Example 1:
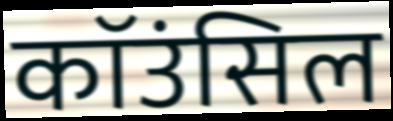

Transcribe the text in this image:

कॉउंसिल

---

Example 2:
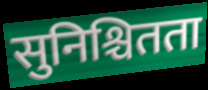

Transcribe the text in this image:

सुनिश्चितता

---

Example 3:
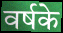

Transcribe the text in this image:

वर्षके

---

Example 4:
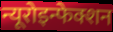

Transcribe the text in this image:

न्यूरोइन्फेक्शन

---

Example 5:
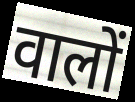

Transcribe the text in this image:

वालों